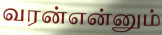
வரன்என்னும்